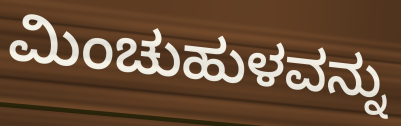
ಮಿಂಚುಹುಳವನ್ನು